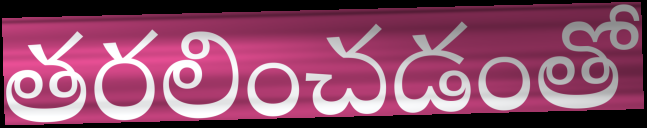
తరలించడంతో